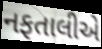
નફતાલીએ